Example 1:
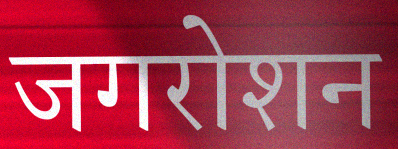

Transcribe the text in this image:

जगरोशन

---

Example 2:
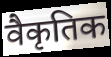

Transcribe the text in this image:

वैकृतिक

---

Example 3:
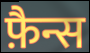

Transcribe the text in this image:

फ़ैन्स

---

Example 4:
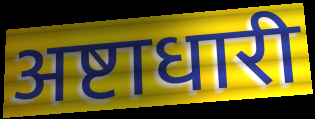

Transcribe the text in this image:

अष्टाधारी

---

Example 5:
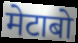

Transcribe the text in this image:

मेटाबो